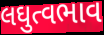
લઘુત્વભાવ